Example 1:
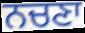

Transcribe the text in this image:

ਨਚਣਾ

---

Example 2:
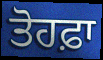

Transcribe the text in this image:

ਤੋਹਫ਼ਾ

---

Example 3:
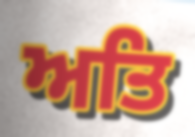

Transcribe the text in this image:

ਅਤਿ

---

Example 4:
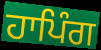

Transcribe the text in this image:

ਹਾਪਿੰਗ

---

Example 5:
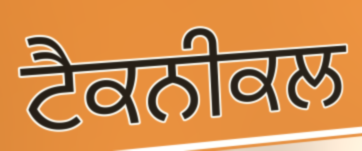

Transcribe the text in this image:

ਟੈਕਨੀਕਲ